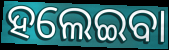
ହଲେଇବା